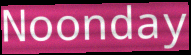
Noonday